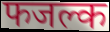
फजल्क